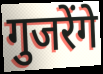
गुजरेंगे